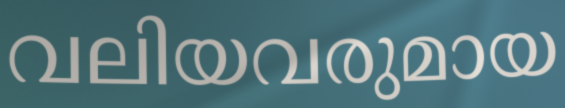
വലിയവരുമായ